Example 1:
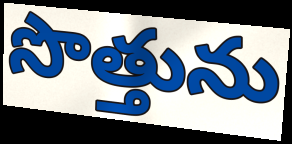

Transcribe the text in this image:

సొత్తును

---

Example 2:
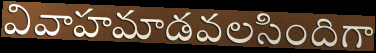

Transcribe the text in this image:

వివాహమాడవలసిందిగా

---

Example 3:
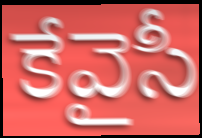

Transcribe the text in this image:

కేవైసీ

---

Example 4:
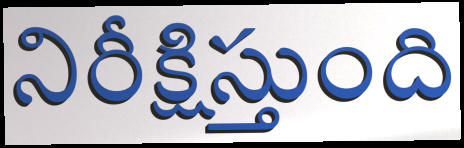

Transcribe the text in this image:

నిరీక్షిస్తుంది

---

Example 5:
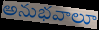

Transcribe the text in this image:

అనుభవాలూ